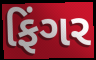
ફિંગર